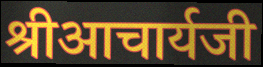
श्रीआचार्यजी